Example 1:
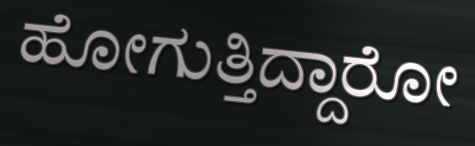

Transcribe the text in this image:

ಹೋಗುತ್ತಿದ್ದಾರೋ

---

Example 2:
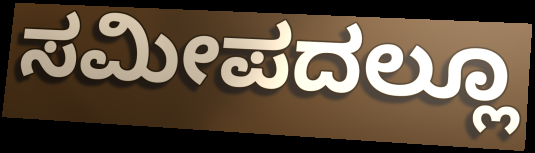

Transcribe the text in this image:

ಸಮೀಪದಲ್ಲೂ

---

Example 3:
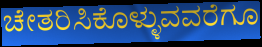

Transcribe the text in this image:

ಚೇತರಿಸಿಕೊಳ್ಳುವವರೆಗೂ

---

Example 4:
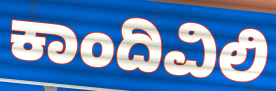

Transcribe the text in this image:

ಕಾಂದಿವಿಲಿ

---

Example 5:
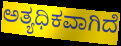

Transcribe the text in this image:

ಅತ್ಯಧಿಕವಾಗಿದೆ